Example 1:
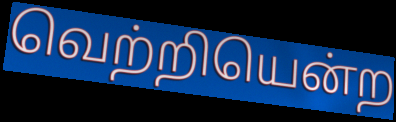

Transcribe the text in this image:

வெற்றியென்ற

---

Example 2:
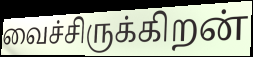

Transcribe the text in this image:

வைச்சிருக்கிறன்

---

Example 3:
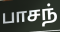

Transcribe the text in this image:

பாசந்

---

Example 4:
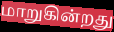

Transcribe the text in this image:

மாறுகின்றது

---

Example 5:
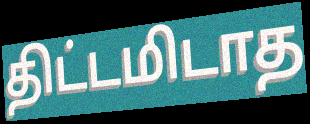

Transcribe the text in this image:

திட்டமிடாத